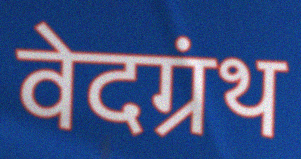
वेदग्रंथ